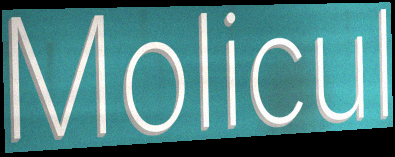
Molicul